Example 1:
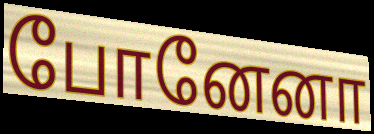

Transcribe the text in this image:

போனேனா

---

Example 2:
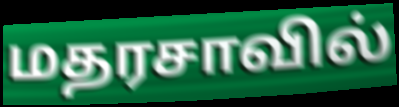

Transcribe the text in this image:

மதரசாவில்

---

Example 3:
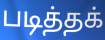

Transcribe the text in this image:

படித்தக்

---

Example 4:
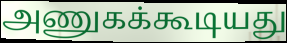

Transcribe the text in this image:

அணுகக்கூடியது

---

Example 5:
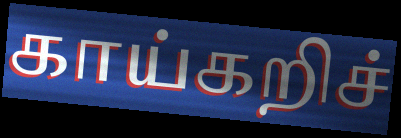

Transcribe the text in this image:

காய்கறிச்